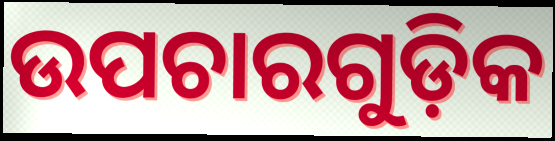
ଉପଚାରଗୁଡ଼ିକ